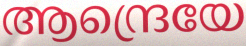
ആന്ദ്രെയേ